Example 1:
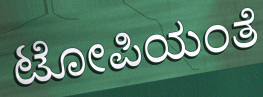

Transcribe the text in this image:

ಟೋಪಿಯಂತೆ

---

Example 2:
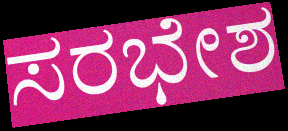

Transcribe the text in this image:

ಸರಭೇಶ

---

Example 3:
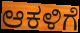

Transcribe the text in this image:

ಆಕಳಿಗೆ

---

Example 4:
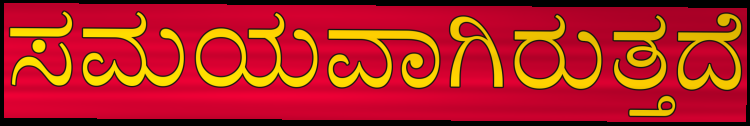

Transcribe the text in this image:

ಸಮಯವಾಗಿರುತ್ತದೆ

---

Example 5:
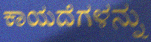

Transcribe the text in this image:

ಕಾಯದೆಗಳನ್ನು